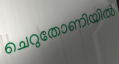
ചെറുതോണിയിൽ